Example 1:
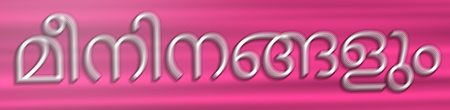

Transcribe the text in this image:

മീനിനങ്ങളും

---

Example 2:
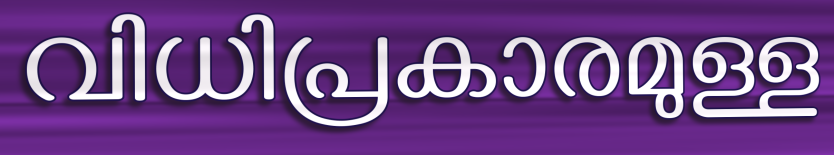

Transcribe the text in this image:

വിധിപ്രകാരമുള്ള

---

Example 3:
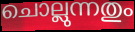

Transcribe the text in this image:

ചൊല്ലുന്നതും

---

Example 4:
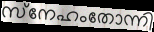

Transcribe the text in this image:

സ്‌നേഹംതോന്നി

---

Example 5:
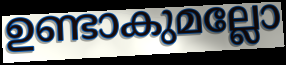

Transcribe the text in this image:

ഉണ്ടാകുമല്ലോ